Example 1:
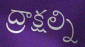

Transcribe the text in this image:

ద్రాక్షల్ని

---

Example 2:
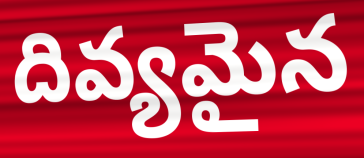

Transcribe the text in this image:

దివ్యమైన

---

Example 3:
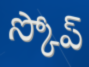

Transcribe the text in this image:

స్కోప్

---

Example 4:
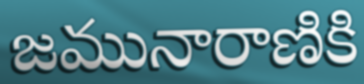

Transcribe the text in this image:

జమునారాణికి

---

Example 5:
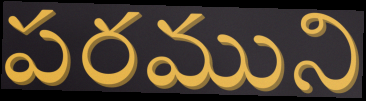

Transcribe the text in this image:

పరముని